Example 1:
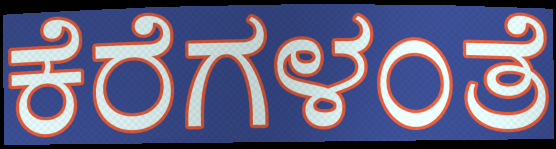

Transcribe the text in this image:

ಕೆರೆಗಳಂತೆ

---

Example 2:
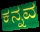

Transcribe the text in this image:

ಕನ್ನವ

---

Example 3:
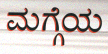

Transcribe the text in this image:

ಮಗ್ಗೆಯ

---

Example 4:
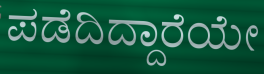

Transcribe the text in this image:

ಪಡೆದಿದ್ದಾರೆಯೇ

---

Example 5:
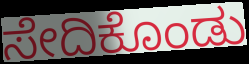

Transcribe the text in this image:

ಸೇದಿಕೊಂಡು